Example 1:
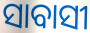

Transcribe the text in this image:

ସାବାସୀ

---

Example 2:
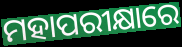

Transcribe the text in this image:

ମହାପରୀକ୍ଷାରେ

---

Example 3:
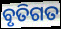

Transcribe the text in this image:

ବୃତିଗତ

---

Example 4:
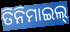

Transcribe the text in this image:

ତିନିମାଇଲ୍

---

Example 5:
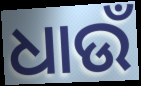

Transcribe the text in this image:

ଧାଉଁ